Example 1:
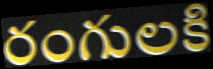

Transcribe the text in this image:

రంగులకి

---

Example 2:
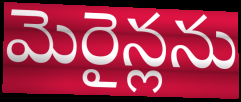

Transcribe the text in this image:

మెరైన్లను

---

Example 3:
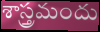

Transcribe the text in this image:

శాస్త్రమందు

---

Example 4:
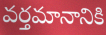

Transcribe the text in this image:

వర్తమానానికి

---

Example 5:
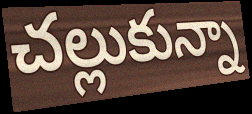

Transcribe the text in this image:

చల్లుకున్నా